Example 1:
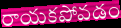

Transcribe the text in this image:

రాయకపోవడం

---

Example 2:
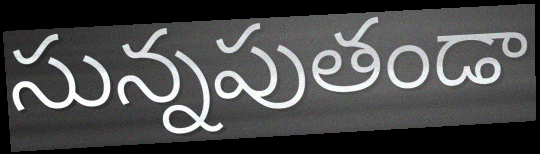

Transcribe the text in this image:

సున్నపుతండా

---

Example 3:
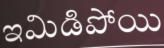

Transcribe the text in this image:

ఇమిడిపోయి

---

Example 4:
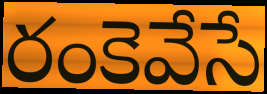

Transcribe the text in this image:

రంకెవేసే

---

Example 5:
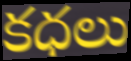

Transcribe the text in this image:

కధలు